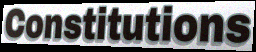
Constitutions